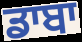
ਡਾਬਾ